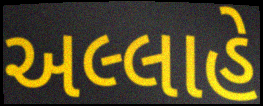
અલ્લાહે